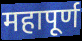
महापूर्ण